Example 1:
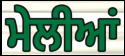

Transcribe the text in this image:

ਮੇਲੀਆਂ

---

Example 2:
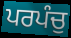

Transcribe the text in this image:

ਪਰਪੰਚੁ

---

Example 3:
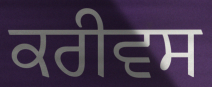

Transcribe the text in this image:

ਕਰੀਵਸ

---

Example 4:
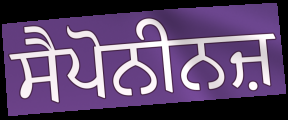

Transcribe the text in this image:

ਸੈਪੋਨੀਨਜ਼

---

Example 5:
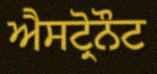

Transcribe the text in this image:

ਐਸਟ੍ਰੋਨੌਟ